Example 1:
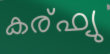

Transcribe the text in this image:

കര്ഫ്യു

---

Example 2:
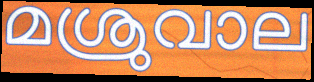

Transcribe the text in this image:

മശ്രുവാല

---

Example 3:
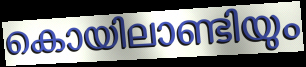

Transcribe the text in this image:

കൊയിലാണ്ടിയും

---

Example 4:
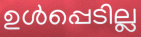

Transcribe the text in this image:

ഉൾപ്പെടില്ല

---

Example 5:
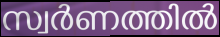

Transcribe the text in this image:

സ്വർണത്തിൽ